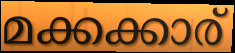
മക്കക്കാര്